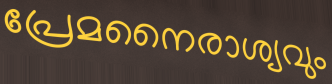
പ്രേമനൈരാശ്യവും